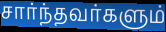
சார்ந்தவர்களும்